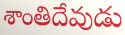
శాంతిదేవుడు